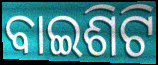
ବାଇଶିଟି